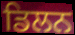
ਡਿਲਨ